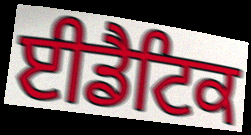
ਈਡੈਟਿਕ